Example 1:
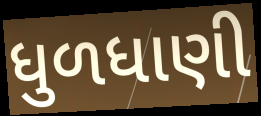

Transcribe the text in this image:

ધુળધાણી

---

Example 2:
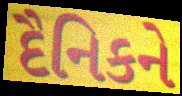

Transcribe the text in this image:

દૈનિકને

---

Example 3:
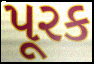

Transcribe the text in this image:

પૂરક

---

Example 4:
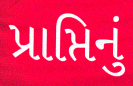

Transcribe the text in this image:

પ્રાપ્તિનું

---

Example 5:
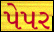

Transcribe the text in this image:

પેપર